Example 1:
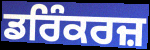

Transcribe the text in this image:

ਡਰਿੰਕਰਜ਼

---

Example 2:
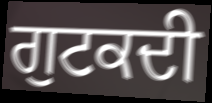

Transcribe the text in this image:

ਗੁਟਕਦੀ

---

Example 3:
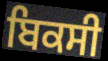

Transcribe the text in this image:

ਬਿਕਸੀ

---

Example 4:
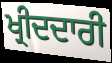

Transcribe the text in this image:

ਖ੍ਰੀਦਦਾਰੀ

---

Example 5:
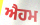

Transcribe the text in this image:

ਐਹਮ